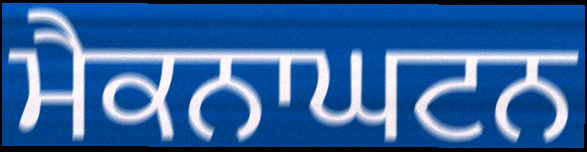
ਮੈਕਨਾਘਟਨ